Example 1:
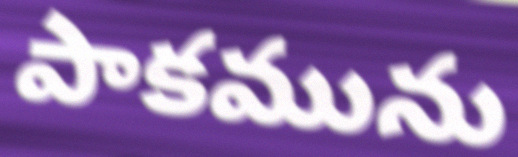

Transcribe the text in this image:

పాకమును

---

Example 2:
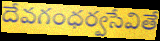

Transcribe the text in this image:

దేవగంధర్వసేవితే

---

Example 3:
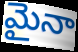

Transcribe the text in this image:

మైనా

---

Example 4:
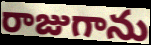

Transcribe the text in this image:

రాజుగాను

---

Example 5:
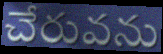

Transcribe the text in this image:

చేరువను